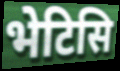
भेटिसि